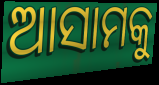
ଆସାମକୁ